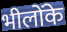
भीलोंके